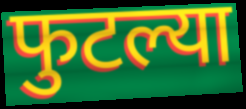
फुटल्या